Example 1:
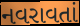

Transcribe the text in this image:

નવરાવતાં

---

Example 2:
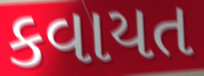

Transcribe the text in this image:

કવાયત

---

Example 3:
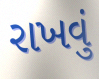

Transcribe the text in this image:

રાખવું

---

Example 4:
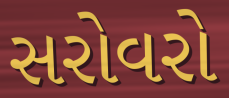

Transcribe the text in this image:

સરોવરો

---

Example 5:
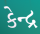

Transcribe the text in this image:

કેન્દ્ર